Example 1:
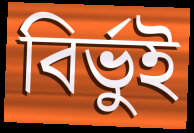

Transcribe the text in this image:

বির্ভুই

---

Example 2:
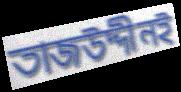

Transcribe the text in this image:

তাজউদ্দীনই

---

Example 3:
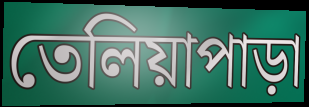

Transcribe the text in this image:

তেলিয়াপাড়া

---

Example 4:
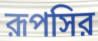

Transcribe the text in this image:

রূপসির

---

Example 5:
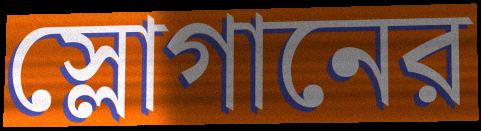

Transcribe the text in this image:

স্লোগানের